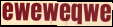
eweweqwe